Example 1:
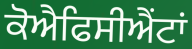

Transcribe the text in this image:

ਕੋਐਫਿਸੀਐਂਟਾਂ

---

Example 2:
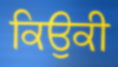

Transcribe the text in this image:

ਕਿਉਕੀ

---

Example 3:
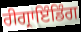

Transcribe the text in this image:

ਰੀਗ੍ਰਾਇੰਡਿੰਗ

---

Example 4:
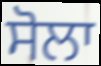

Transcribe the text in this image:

ਸੋਲਾ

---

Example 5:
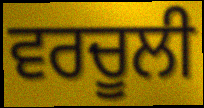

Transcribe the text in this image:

ਵਰਚੂਲੀ